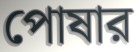
পোষার